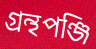
গ্রন্থপঞ্জি